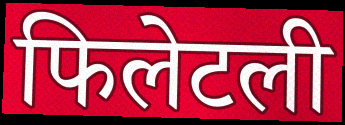
फिलेटली